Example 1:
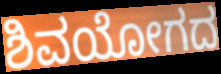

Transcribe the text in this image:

ಶಿವಯೋಗದ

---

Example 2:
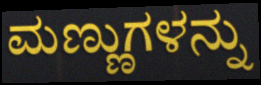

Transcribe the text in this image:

ಮಣ್ಣುಗಳನ್ನು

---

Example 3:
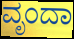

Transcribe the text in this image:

ವೃಂದಾ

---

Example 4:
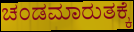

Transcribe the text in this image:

ಚಂಡಮಾರುತಕ್ಕೆ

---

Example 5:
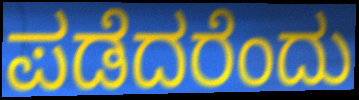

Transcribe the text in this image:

ಪಡೆದರೆಂದು